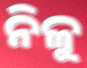
ନିଳୁ